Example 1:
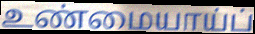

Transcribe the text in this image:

உண்மையாய்ப்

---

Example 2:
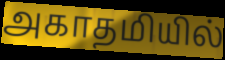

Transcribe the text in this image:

அகாதமியில்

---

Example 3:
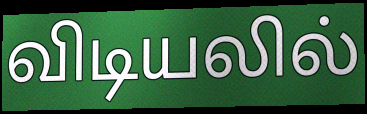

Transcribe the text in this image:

விடியலில்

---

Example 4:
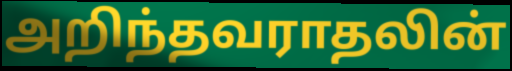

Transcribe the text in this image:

அறிந்தவராதலின்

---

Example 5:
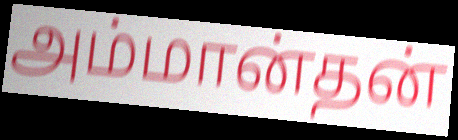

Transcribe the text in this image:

அம்மான்தன்